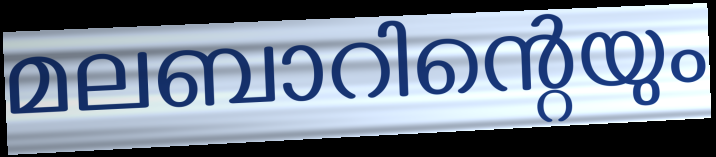
മലബാറിന്റെയും